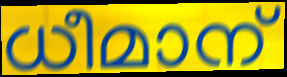
ധീമാന്